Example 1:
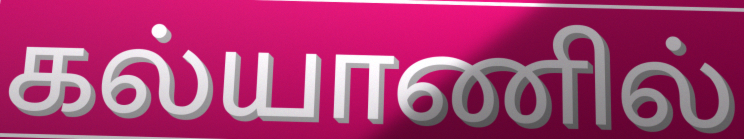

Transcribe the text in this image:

கல்யாணில்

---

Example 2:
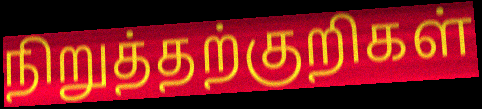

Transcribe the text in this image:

நிறுத்தற்குறிகள்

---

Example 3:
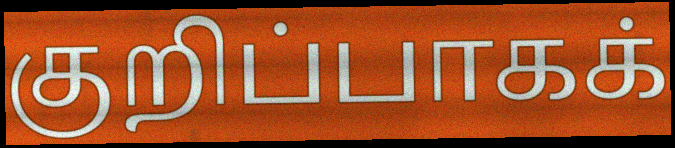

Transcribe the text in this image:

குறிப்பாகக்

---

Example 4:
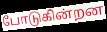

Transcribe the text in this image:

போடுகின்றன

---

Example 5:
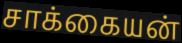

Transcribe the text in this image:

சாக்கையன்